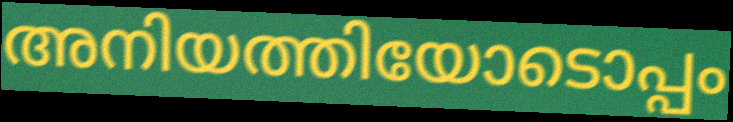
അനിയത്തിയോടൊപ്പം